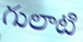
గులాటి